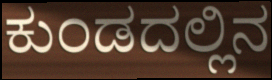
ಕುಂಡದಲ್ಲಿನ